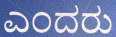
ಎಂದರು